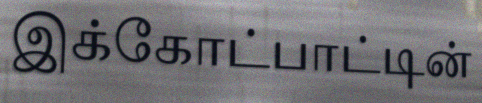
இக்கோட்பாட்டின்